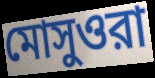
মোসুওরা